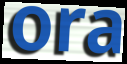
ora